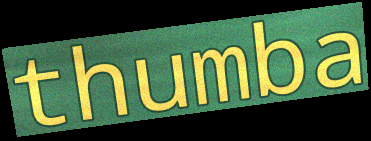
thumba